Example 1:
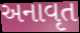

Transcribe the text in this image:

અનાવૃત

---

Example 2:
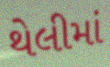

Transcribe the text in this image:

થેલીમાં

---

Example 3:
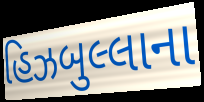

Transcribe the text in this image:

હિઝબુલ્લાના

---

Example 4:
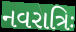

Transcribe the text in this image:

નવરાત્રિઃ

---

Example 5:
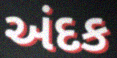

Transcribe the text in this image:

અંદક